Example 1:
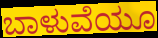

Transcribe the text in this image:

ಬಾಳುವೆಯೂ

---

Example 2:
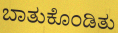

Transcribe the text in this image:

ಬಾತುಕೊಂಡಿತು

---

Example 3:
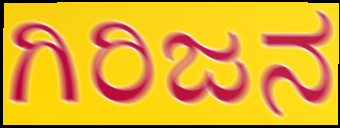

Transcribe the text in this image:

ಗಿರಿಜನ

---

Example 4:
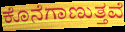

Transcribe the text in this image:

ಕೊನೆಗಾಣುತ್ತವೆ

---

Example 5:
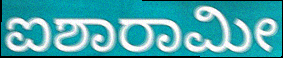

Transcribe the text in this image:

ಐಶಾರಾಮೀ